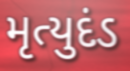
મૃત્યુદંડ